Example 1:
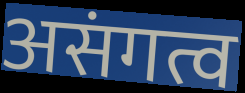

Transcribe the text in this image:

असंगत्व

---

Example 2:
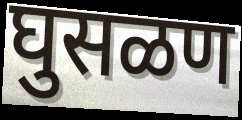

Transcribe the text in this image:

घुसळण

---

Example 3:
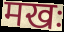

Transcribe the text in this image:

मखः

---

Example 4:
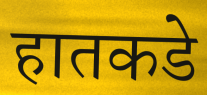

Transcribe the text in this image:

हातकडे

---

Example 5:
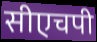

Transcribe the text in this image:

सीएचपी